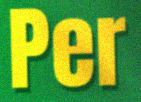
Per